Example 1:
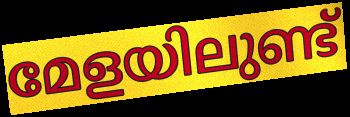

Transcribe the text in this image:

മേളയിലുണ്ട്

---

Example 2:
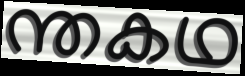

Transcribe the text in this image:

ന്തകഥ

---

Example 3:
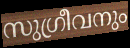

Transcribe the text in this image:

സുഗ്രീവനും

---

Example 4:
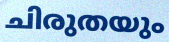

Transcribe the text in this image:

ചിരുതയും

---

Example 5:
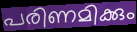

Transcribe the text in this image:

പരിണമിക്കും